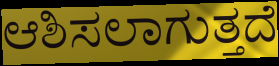
ಆಶಿಸಲಾಗುತ್ತದೆ